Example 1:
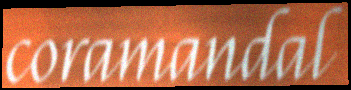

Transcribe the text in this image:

coramandal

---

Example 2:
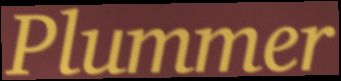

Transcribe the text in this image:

Plummer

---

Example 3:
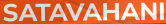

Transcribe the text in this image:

SATAVAHANI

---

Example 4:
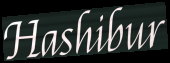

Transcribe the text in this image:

Hashibur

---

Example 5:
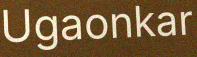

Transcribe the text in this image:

Ugaonkar